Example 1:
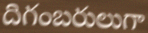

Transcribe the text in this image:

దిగంబరులుగా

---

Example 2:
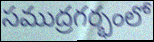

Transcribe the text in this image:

సముద్రగర్భంలో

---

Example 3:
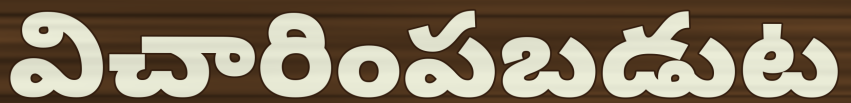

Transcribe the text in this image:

విచారింపబడుట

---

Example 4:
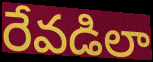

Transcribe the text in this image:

రేవడిలా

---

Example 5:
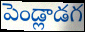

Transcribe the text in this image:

పెండ్లాడగ